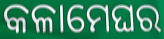
କଳାମେଘର